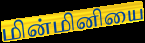
மின்மினியை